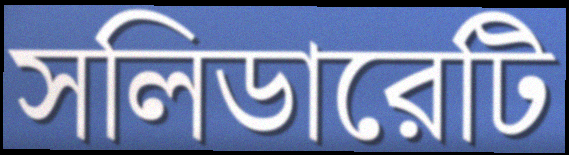
সলিডারেটি